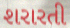
શરારતી